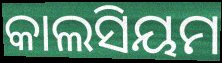
କାଲସିୟମ